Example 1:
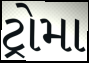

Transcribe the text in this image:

ટ્રોમા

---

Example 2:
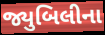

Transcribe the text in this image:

જ્યુબિલીના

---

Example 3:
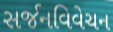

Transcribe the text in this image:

સર્જનવિવેચન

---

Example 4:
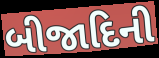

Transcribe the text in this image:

બીજાદિની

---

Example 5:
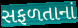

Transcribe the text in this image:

સફળતાનાં